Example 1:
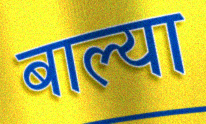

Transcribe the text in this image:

बाल्या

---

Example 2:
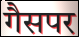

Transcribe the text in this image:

गैसपर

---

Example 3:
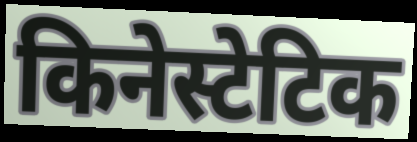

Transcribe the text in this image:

किनेस्टेटिक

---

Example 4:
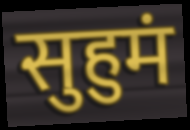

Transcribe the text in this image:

सुहुमं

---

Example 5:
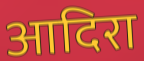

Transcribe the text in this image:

आदिरा